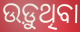
ଉଡ଼ୁଥିବା